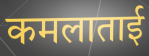
कमलाताई